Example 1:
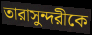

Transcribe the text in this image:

তারাসুন্দরীকে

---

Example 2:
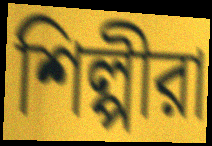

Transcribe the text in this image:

শিল্পীরা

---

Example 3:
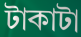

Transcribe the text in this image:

টাকাটা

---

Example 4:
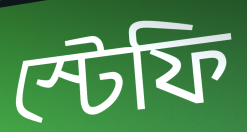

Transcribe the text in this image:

স্টেফি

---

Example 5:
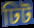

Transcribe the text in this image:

ঢিট